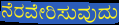
ನೆರವೇರಿಸುವುದು